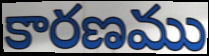
కారణము